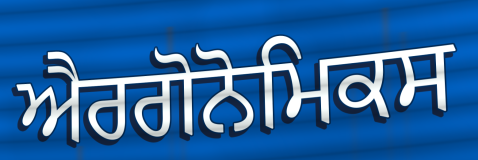
ਐਰਗੋਨੋਮਿਕਸ